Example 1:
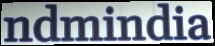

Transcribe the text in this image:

ndmindia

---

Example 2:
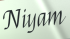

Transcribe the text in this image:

Niyam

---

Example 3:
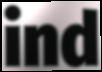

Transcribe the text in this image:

ind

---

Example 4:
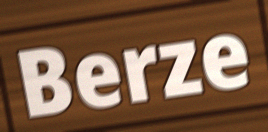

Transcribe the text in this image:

Berze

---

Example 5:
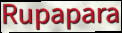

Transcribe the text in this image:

Rupapara